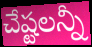
చేష్టలన్నీ